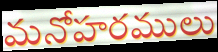
మనోహరములు